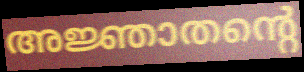
അജ്ഞാതന്റെ